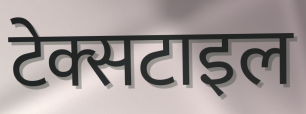
टेक्‍सटाइल